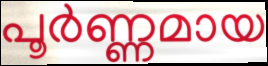
പൂർണ്ണമായ